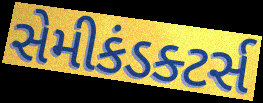
સેમીકંડક્ટર્સ